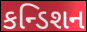
કન્ડિશન